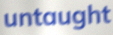
untaught